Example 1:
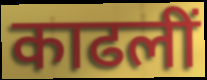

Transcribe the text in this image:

काढलीं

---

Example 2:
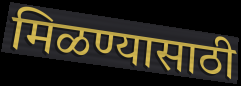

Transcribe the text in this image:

मिळण्यासाठी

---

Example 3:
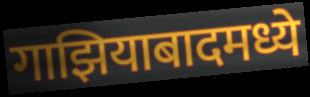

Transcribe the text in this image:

गाझियाबादमध्ये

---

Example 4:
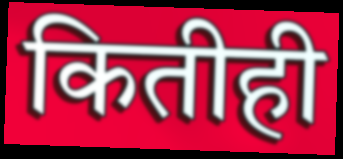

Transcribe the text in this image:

कितीही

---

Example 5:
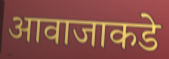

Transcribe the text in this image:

आवाजाकडे